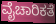
ವೈಚಾರಿಕತೆ